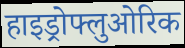
हाइड्रोफ्लुओरिक